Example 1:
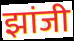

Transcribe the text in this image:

झांजी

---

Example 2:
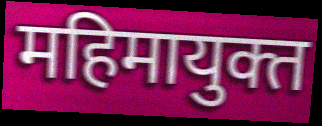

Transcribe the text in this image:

महिमायुक्‍त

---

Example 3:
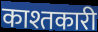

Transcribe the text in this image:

काश्तकारी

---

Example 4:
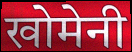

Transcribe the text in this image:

खोमेनी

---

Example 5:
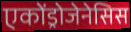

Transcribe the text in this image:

एकोंड्रोजेनेसिस